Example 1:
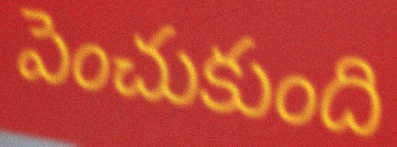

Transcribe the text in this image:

పెంచుకుంది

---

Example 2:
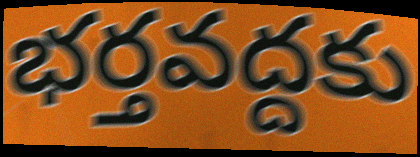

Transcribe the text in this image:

భర్తవద్దకు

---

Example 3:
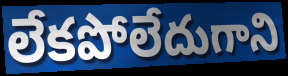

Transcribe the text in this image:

లేకపోలేదుగాని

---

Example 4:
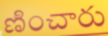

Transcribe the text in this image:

ణించారు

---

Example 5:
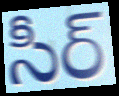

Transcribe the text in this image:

సీర్